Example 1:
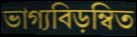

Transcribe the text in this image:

ভাগ্যবিড়ম্বিত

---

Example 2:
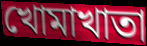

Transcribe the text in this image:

খোমাখাতা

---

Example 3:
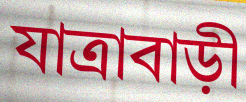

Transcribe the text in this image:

যাত্রাবাড়ী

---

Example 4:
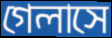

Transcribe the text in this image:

গেলাসে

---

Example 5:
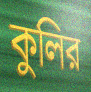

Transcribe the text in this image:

কুলির